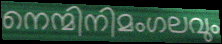
നെന്മിനിമംഗലവും